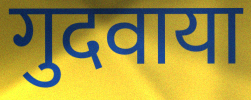
गुदवाया